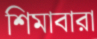
শিমাবারা